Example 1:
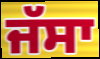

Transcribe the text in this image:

ਜੱਸਾ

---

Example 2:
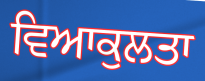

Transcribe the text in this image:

ਵਿਆਕੁਲਤਾ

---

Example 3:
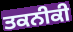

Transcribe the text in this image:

ਤਕਨੀਕੀ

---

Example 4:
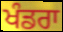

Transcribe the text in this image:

ਖੰਡਰਾ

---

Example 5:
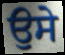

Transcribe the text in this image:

ਉਸੇ